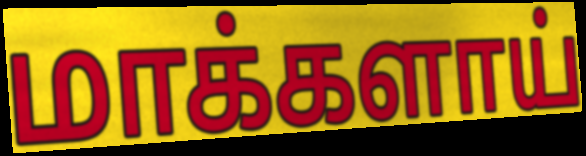
மாக்களாய்